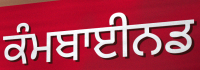
ਕੰਮਬਾਈਨਡ